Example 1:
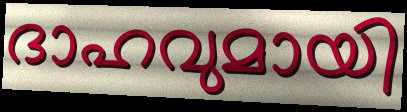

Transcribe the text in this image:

ദാഹവുമായി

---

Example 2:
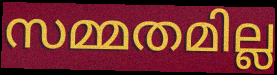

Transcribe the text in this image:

സമ്മതമില്ല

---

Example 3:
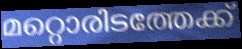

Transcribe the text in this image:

മറ്റൊരിടത്തേക്ക്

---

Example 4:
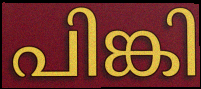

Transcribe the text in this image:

പിങ്കി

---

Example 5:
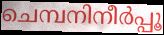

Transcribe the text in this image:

ചെമ്പനിനീർപ്പൂ